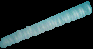
അവിനിപാതധമ്മോ